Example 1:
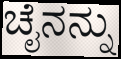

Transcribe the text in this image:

ಚೈನನ್ನು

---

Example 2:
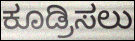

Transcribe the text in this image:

ಕೂಡ್ರಿಸಲು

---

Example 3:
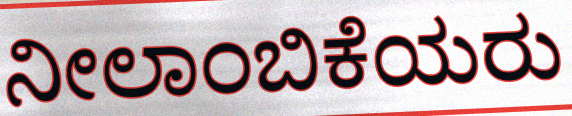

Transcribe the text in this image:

ನೀಲಾಂಬಿಕೆಯರು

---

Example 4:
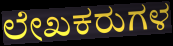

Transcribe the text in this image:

ಲೇಖಕರುಗಳ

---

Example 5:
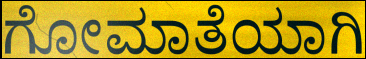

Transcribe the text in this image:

ಗೋಮಾತೆಯಾಗಿ